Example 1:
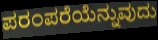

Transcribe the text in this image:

ಪರಂಪರೆಯೆನ್ನುವುದು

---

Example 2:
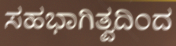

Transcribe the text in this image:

ಸಹಭಾಗಿತ್ವದಿಂದ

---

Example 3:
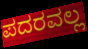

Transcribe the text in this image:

ಪದರವಲ್ಲ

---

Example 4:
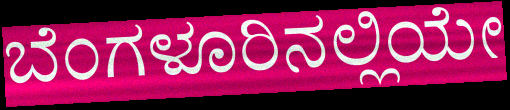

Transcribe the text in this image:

ಬೆಂಗಳೂರಿನಲ್ಲಿಯೇ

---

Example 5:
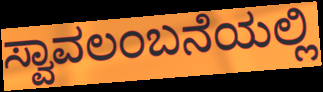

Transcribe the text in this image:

ಸ್ವಾವಲಂಬನೆಯಲ್ಲಿ